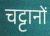
चट्टानों